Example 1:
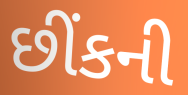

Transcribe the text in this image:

છીંકની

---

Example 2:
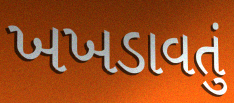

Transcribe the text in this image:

ખખડાવતું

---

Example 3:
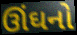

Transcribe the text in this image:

ઊંઘનો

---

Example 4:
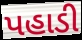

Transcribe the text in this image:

પહાડી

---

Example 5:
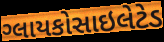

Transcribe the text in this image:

ગ્લાયકોસાઇલેટેડ